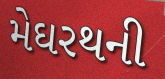
મેઘરથની